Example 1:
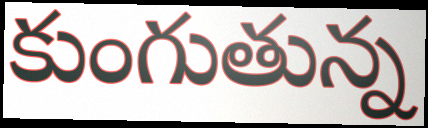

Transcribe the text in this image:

కుంగుతున్న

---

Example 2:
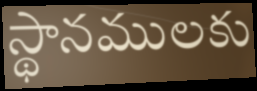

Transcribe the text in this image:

స్థానములకు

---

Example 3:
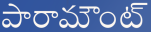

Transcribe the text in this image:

పారామౌంట్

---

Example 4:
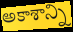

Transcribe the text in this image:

అకాశాన్ని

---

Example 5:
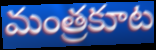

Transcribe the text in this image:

మంత్రకూట